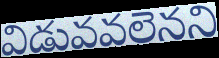
విడువవలెనని